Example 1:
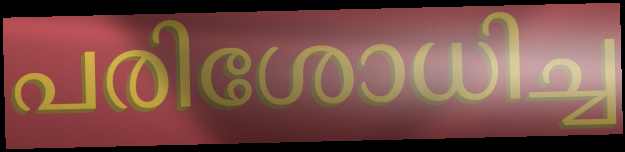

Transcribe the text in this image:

പരിശോധിച്ച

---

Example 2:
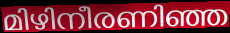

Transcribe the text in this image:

മിഴിനീരണിഞ്ഞ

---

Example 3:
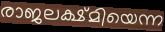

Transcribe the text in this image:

രാജലക്ഷ്മിയെന്ന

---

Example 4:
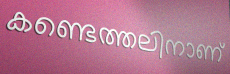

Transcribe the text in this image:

കണ്ടെത്തലിനാണ്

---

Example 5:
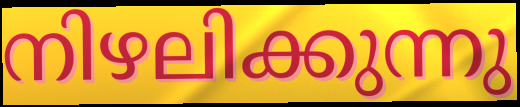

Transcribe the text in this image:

നിഴലിക്കുന്നു